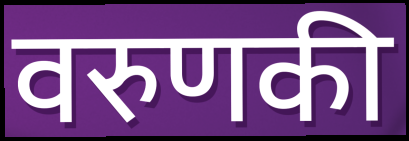
वरुणकी